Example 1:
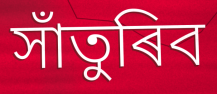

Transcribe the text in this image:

সাঁতুৰিব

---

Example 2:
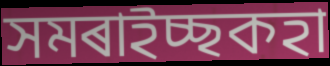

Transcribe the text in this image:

সমৰাইচ্ছকহা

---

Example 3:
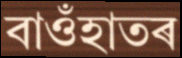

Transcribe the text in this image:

বাওঁহাতৰ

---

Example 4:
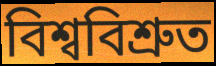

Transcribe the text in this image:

বিশ্ববিশ্ৰুত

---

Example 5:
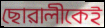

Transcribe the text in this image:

ছোৱালীকেই